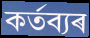
কৰ্তব্যৰ